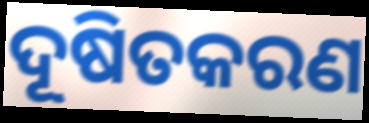
ଦୂଷିତକରଣ